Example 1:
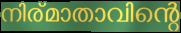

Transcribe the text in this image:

നിര്മാതാവിന്റെ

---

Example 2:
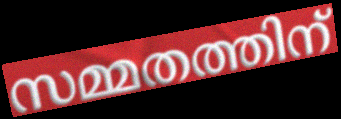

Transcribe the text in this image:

സമ്മതത്തിന്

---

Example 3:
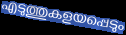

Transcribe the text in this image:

എടുത്തുകളയപ്പെടും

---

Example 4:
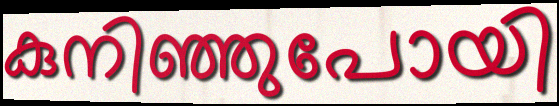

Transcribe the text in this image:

കുനിഞ്ഞുപോയി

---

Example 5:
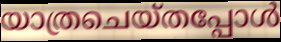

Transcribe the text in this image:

യാത്രചെയ്തപ്പോൾ